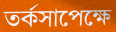
তর্কসাপেক্ষে